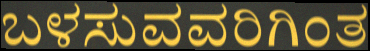
ಬಳಸುವವರಿಗಿಂತ